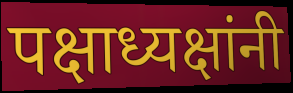
पक्षाध्यक्षांनी